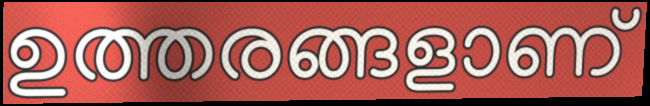
ഉത്തരങ്ങളാണ്